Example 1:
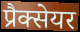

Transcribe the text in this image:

प्रैक्सेयर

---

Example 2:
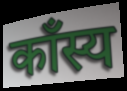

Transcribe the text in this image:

काँस्य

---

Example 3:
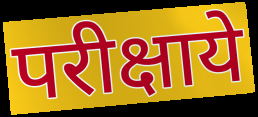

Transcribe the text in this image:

परीक्षाये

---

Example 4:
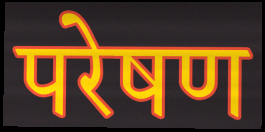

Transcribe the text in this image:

परेषण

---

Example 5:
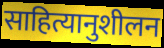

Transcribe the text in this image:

साहित्यानुशीलन